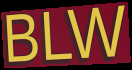
BLW